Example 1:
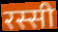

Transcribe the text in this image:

रस्सी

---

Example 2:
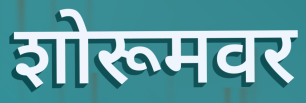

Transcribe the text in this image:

शोरूमवर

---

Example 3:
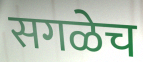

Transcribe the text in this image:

सगळेच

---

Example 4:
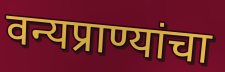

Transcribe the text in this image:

वन्यप्राण्यांचा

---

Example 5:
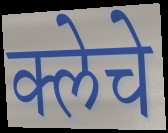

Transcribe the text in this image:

क्लेचे